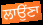
ਲਾਉਂਣਾ